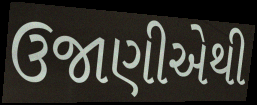
ઉજાણીએથી